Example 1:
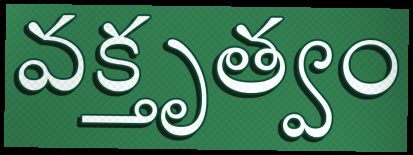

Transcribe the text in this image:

వక్తృత్వం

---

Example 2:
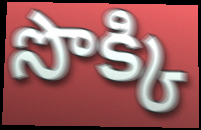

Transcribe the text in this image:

సొక్కి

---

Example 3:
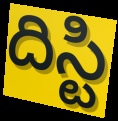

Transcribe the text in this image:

దిస్టి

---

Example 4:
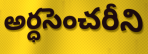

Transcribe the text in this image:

అర్ధసెంచరీని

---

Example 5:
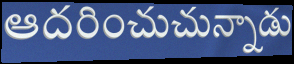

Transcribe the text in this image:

ఆదరించుచున్నాడు